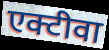
एक्टीवा